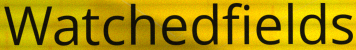
Watchedfields